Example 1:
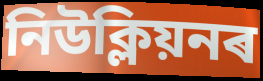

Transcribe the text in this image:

নিউক্লিয়নৰ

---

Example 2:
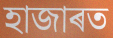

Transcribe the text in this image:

হাজাৰত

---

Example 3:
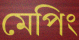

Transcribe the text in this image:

মেপিং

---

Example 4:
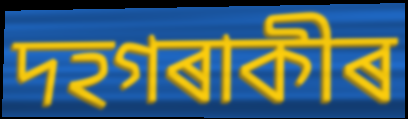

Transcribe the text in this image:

দহগৰাকীৰ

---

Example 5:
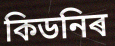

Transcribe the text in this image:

কিডনিৰ